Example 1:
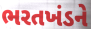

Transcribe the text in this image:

ભરતખંડને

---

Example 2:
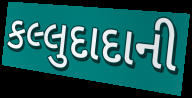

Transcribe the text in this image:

કલ્લુદાદાની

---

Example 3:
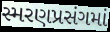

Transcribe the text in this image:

સ્મરણપ્રસંગમાં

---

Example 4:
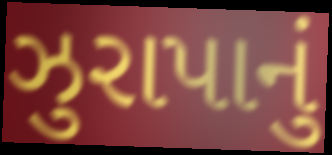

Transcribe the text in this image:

ઝુરાપાનું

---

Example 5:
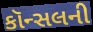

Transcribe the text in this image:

કૉન્સલની